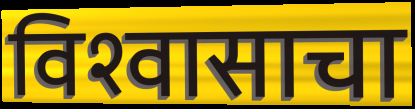
विश्वासाचा